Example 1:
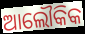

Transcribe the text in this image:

ଆଲୌକିକ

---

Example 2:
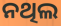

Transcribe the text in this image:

ନଥିଲ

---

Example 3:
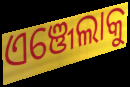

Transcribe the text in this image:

ଏଞ୍ଜେଲାକୁ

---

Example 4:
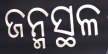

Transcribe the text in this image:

ଜନ୍ମସ୍ଥଳ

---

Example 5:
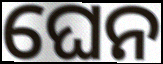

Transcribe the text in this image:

ଘେନ